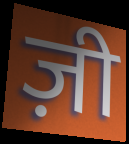
ज़ी